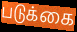
படுக்கை